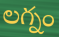
లగ్నం